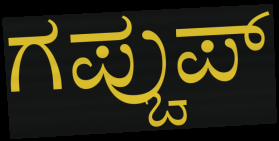
ಗಪ್ಚುಪ್